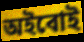
অইবোই